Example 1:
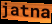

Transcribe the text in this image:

jatna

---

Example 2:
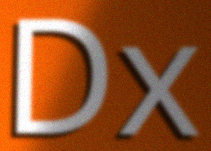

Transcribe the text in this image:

Dx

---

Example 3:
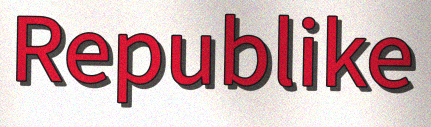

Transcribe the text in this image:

Republike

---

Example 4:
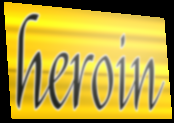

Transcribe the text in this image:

heroin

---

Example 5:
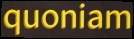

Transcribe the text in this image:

quoniam